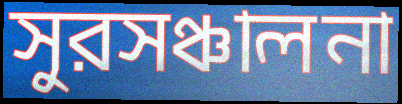
সুরসঞ্চালনা